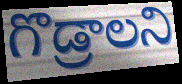
గొడ్రాలని